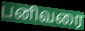
பனிவரை